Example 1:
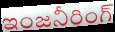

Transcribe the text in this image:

ఇంజనీరింగ్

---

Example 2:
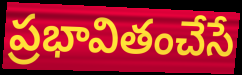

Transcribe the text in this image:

ప్రభావితంచేసే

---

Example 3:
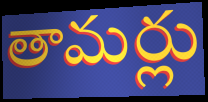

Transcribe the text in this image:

తామర్లు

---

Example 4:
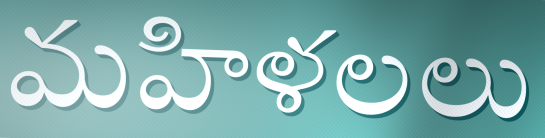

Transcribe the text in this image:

మహిళలలు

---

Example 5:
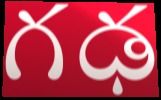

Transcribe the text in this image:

గఢ